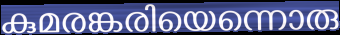
കുമരങ്കരിയെന്നൊരു